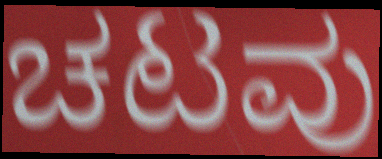
ಚಟವು